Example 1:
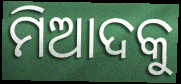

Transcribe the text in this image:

ମିଆଦକୁ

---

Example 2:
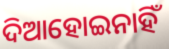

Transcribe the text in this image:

ଦିଆହୋଇନାହିଁ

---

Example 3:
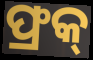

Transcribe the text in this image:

ଫ୍ରକ୍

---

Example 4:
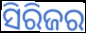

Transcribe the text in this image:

ସିରିଜର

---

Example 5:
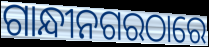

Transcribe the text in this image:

ଗାନ୍ଧୀନଗରଠାରେ